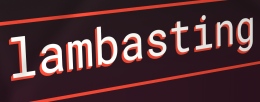
lambasting